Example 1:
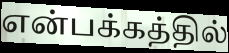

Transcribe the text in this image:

என்பக்கத்தில்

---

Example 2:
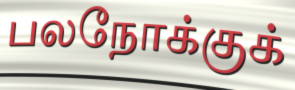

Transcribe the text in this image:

பலநோக்குக்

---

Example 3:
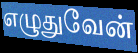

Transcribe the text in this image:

எழுதுவேன்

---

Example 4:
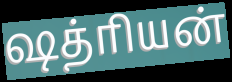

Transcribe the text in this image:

ஷத்ரியன்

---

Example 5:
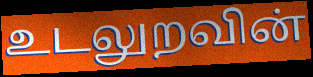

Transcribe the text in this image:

உடலுறவின்